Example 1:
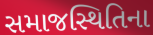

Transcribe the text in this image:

સમાજસ્થિતિના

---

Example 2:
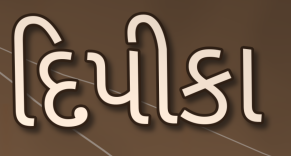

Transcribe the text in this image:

દિપીકા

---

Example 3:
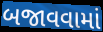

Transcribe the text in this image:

બજાવવામાં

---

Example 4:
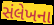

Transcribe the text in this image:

સંલેખના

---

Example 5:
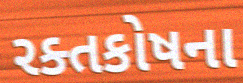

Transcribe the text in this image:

રક્તકોષના